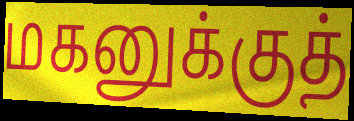
மகனுக்குத்